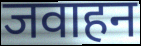
जवाहन